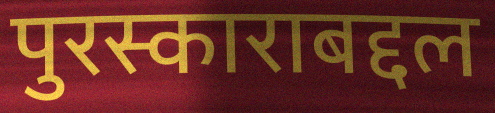
पुरस्काराबद्दल